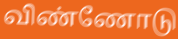
விண்ணோடு